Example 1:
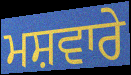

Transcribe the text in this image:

ਮਸ਼ਵਾਰੇ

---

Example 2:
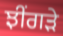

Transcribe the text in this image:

ਝੀਂਗੜੇ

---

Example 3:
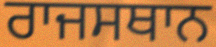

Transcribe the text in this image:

ਰਾਜਸਥਾਨ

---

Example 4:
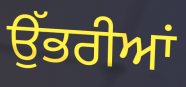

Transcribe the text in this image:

ਉੱਭਰੀਆਂ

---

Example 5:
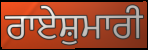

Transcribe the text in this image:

ਰਾਏਸ਼ੁਮਾਰੀ